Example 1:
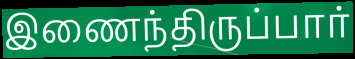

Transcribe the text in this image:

இணைந்திருப்பார்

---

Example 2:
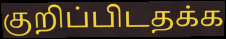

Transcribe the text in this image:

குறிப்பிடதக்க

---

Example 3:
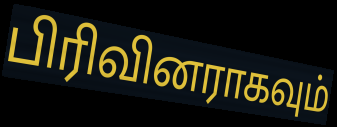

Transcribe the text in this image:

பிரிவினராகவும்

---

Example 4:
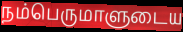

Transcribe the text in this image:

நம்பெருமாளுடைய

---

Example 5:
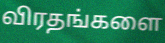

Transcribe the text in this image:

விரதங்களை